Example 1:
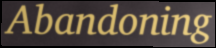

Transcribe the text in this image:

Abandoning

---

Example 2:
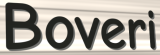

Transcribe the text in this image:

Boveri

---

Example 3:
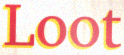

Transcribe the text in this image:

Loot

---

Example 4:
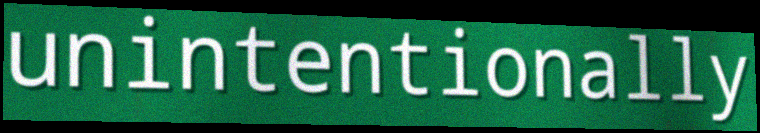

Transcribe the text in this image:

unintentionally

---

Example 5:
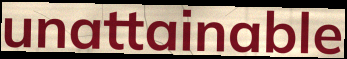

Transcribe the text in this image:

unattainable